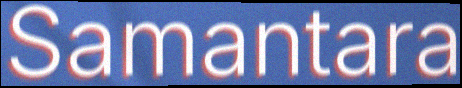
Samantara